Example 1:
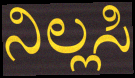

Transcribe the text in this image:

ನಿಲ್ಲಸಿ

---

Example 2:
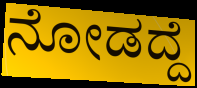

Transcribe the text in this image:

ನೋಡದ್ದೆ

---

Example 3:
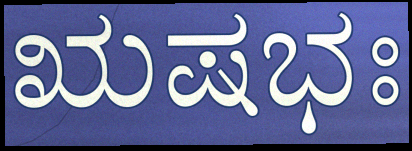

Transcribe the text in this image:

ಋಷಭಃ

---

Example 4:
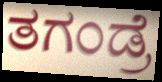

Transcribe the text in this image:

ತಗಂಡ್ರೆ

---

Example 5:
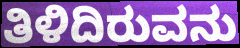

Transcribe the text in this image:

ತಿಳಿದಿರುವನು